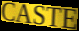
CASTE